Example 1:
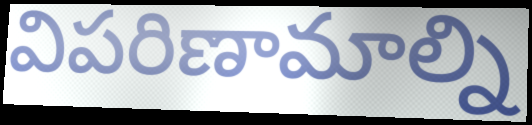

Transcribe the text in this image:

విపరిణామాల్ని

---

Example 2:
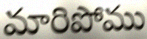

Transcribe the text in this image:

మారిపోము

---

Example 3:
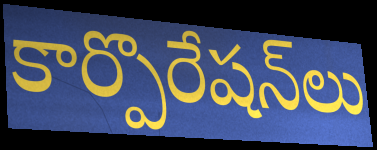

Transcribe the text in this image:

కార్పొరేషన్‌లు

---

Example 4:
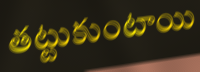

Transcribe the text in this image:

తట్టుకుంటాయి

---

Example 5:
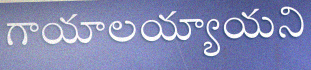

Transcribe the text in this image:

గాయాలయ్యాయని